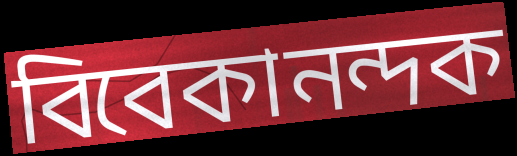
বিবেকানন্দক